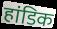
हांडिक